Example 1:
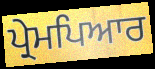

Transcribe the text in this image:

ਪ੍ਰੇਮਪਿਆਰ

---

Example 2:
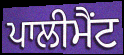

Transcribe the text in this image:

ਪਾਲੀਮੈਂਟ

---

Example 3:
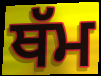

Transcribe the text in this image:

ਥੱਮ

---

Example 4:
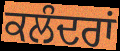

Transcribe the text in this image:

ਕਲੰਦਰਾਂ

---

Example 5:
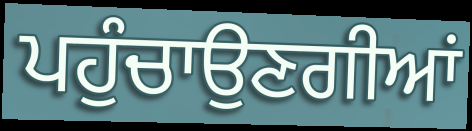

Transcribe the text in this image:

ਪਹੁੰਚਾਉਣਗੀਆਂ